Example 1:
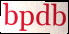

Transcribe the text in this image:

bpdb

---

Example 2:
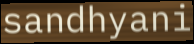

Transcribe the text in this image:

sandhyani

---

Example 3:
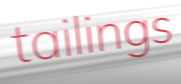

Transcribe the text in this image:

tailings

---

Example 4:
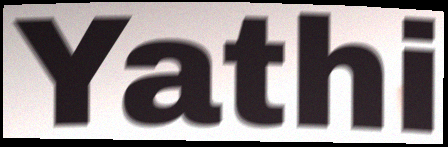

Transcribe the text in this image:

Yathi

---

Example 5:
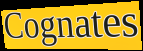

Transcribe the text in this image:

Cognates